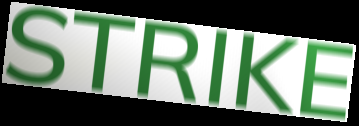
STRIKE